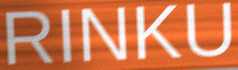
RINKU